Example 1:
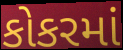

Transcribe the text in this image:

કોકરમાં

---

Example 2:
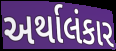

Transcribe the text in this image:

અર્થાલંકાર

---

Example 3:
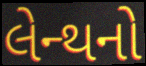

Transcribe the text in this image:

લેન્થનો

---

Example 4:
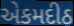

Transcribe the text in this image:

એકમદીઠ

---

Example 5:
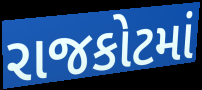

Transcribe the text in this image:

રાજકોટમાં